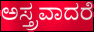
ಅಸ್ತ್ರವಾದರೆ